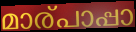
മാര്പാപ്പാ